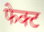
फेक्ट